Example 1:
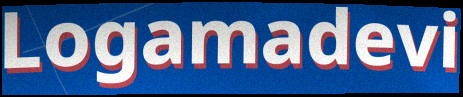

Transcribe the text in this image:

Logamadevi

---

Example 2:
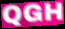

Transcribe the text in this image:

QGH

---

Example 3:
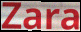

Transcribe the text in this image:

Zara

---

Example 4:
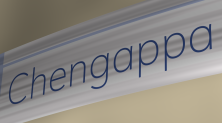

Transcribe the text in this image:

Chengappa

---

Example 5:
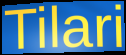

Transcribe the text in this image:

Tilari